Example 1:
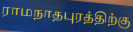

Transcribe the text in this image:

ராமநாதபுரத்திற்கு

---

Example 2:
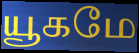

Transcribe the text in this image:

யூகமே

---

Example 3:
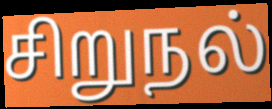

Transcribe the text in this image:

சிறுநல்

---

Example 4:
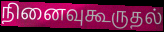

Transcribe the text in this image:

நினைவுகூருதல்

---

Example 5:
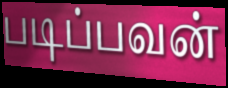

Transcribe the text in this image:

படிப்பவன்